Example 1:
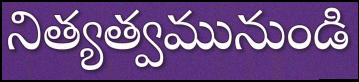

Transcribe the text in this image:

నిత్యత్వమునుండి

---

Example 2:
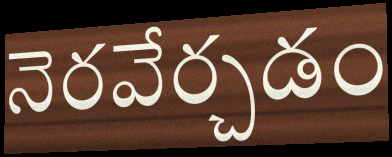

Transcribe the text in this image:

నెరవేర్చడం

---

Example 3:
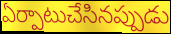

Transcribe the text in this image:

ఏర్పాటుచేసినప్పుడు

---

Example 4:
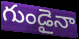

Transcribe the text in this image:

గుండైనా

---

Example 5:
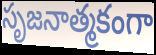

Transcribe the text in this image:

సృజనాత్మకంగా